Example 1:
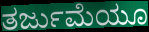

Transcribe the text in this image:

ತರ್ಜುಮೆಯೂ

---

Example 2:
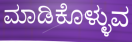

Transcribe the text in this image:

ಮಾಡಿಕೊಳ್ಳುವ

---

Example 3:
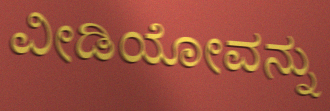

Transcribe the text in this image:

ವೀಡಿಯೋವನ್ನು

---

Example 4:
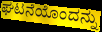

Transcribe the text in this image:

ಘಟನೆಯೊಂದನ್ನು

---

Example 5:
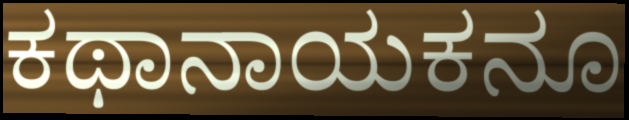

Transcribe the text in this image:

ಕಥಾನಾಯಕನೂ